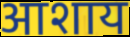
आशाय